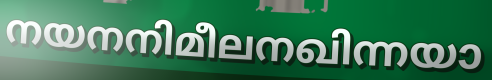
നയനനിമീലനഖിന്നയാ